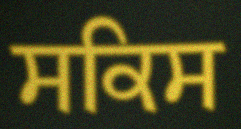
ਸਕਿਸ